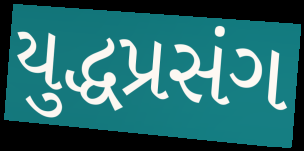
યુદ્ધપ્રસંગ